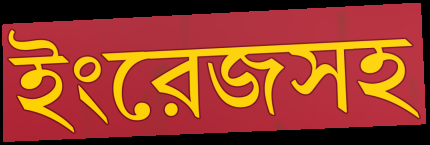
ইংরেজসহ